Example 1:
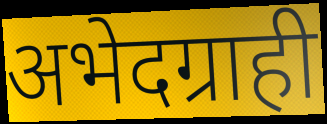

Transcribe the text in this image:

अभेदग्राही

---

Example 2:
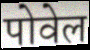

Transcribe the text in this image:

पोवेल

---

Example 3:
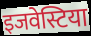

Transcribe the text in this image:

इजवेस्टिया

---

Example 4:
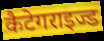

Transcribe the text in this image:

कैटेगराइज्ड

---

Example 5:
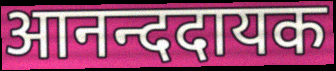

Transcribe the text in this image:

आनन्ददायक